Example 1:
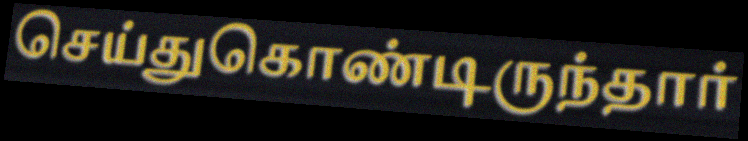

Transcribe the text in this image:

செய்துகொண்டிருந்தார்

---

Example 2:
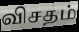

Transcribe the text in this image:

விசதம்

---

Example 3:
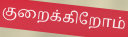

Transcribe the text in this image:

குறைக்கிறோம்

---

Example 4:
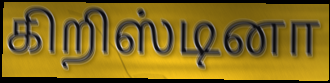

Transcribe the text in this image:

கிறிஸ்டினா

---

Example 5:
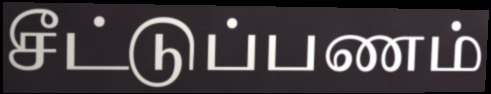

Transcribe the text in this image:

சீட்டுப்பணம்